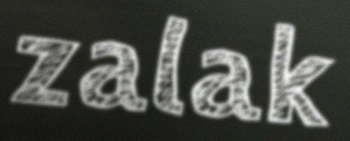
zalak